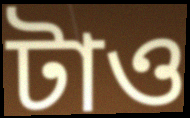
টাও